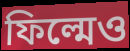
ফিল্মেও